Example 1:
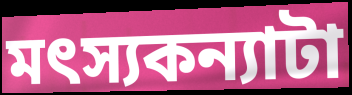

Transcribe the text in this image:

মৎস্যকন্যাটা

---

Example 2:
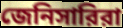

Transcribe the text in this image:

জেনিসারিরা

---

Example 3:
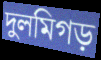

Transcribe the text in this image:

দুলমিগড়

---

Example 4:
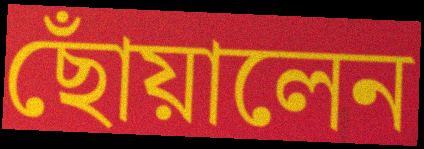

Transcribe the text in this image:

ছোঁয়ালেন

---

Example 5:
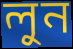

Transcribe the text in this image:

লুন